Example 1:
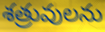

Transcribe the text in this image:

శత్రువులను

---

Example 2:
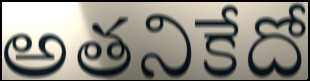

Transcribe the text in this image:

అతనికేదో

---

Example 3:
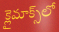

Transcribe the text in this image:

క్లైమాక్స్‌లో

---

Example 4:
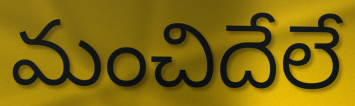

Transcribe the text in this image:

మంచిదేలే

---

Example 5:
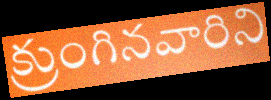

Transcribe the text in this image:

క్రుంగినవారిని